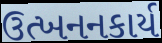
ઉત્ખનનકાર્ય